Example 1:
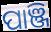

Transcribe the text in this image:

ପାଞ୍ଜି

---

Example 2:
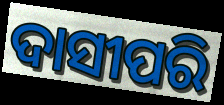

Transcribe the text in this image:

ଦାସୀପରି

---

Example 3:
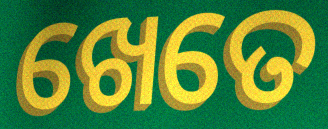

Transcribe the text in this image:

ଖେତେ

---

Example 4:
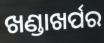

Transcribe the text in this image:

ଖଣ୍ଡାଖର୍ପର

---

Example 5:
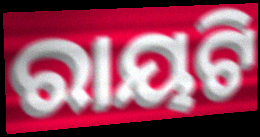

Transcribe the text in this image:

ରାୟଟି